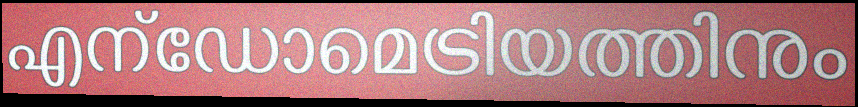
എന്ഡോമെട്രിയത്തിനും